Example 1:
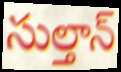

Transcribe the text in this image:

సుల్తాన్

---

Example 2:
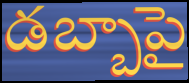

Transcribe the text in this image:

డబ్బాపై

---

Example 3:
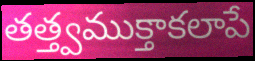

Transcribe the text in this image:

తత్త్వముక్తాకలాపే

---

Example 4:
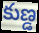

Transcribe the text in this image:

కుణ్డ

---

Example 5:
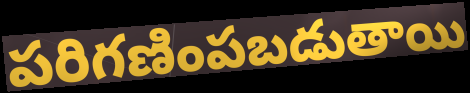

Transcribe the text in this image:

పరిగణింపబడుతాయి